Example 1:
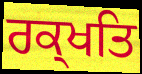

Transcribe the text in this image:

ਰਕ੍ਖਤਿ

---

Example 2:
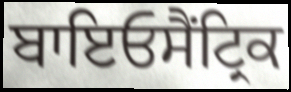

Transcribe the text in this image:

ਬਾਇਓਸੈਂਟ੍ਰਿਕ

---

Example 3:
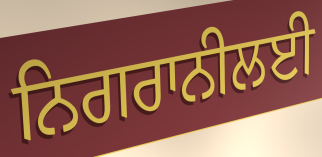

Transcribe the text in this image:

ਨਿਗਰਾਨੀਲਈ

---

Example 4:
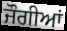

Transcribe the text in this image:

ਜੌਗੀਆਂ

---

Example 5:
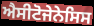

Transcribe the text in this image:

ਐਸੀਟੋਜੇਨੇਸਿਸ